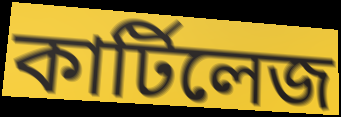
কার্টিলেজ